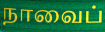
நாவைப்